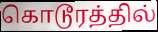
கொடூரத்தில்